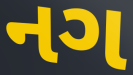
નગ